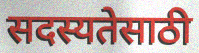
सदस्यतेसाठी